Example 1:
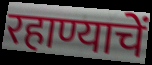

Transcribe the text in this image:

रहाण्याचें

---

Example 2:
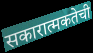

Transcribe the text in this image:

सकारात्मकतेची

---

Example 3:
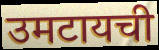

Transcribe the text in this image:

उमटायची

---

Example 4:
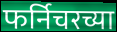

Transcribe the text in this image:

फर्निचरच्या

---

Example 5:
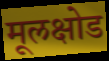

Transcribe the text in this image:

मूलक्षोड